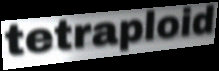
tetraploid